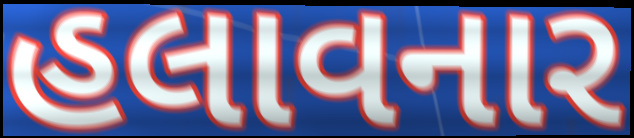
હલાવનાર